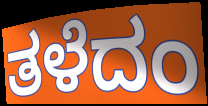
ತಳೆದಂ